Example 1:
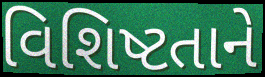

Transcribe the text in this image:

વિશિષ્ટતાને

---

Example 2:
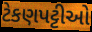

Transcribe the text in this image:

ટેકણપટ્ટીઓ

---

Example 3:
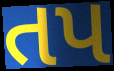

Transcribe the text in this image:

તપ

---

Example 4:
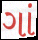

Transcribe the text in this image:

ગાં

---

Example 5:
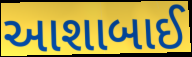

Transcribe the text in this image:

આશાબાઈ